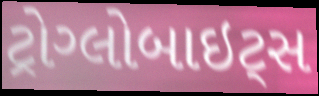
ટ્રોગ્લોબાઇટ્સ